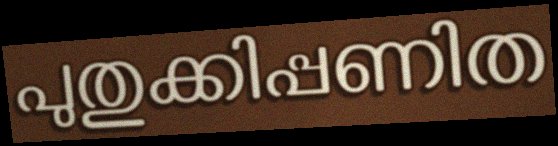
പുതുക്കിപ്പണിത